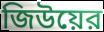
জিউয়ের